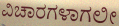
ವಿಚಾರಗಳಾಗಲೀ